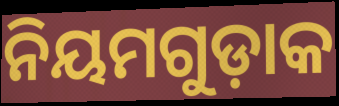
ନିୟମଗୁଡ଼ାକ